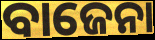
ବାଜେନା